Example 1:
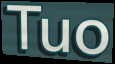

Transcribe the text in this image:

Tuo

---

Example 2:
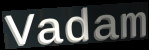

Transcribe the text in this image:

Vadam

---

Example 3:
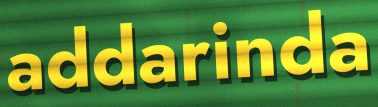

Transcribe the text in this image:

addarinda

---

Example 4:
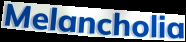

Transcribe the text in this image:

Melancholia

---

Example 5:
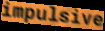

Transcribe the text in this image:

impulsive